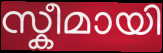
സ്കീമായി